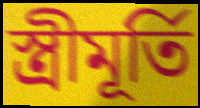
স্ত্রীমূর্তি